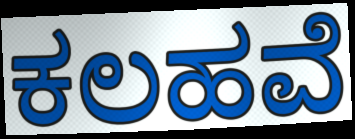
ಕಲಹವೆ